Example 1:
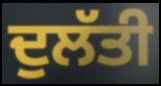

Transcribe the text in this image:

ਦੁਲੱਤੀ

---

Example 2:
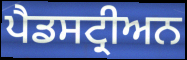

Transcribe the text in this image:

ਪੈਡਸਟ੍ਰੀਅਨ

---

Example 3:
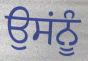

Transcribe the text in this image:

ਉਸਂਨੂੰ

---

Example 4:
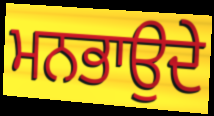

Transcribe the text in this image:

ਮਨਭਾਉਦੇ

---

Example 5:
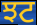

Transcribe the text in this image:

ਝਟ